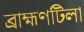
ব্রাহ্মণটিলা